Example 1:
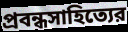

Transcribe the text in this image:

প্রবন্ধসাহিত্যের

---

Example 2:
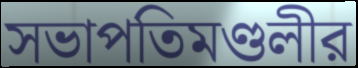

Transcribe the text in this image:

সভাপতিমণ্ডলীর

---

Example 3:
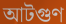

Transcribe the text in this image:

আটগুণ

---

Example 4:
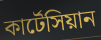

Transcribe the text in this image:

কার্টেসিয়ান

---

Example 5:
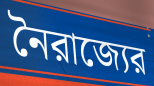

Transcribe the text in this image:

নৈরাজ্যের